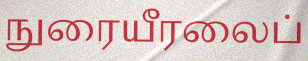
நுரையீரலைப்